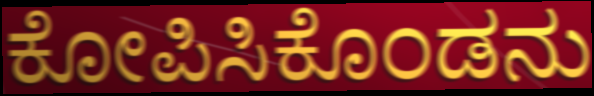
ಕೋಪಿಸಿಕೊಂಡನು